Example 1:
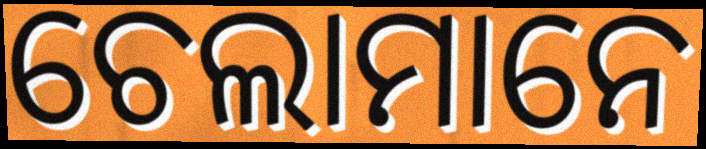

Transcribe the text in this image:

ଚେଲାମାନେ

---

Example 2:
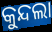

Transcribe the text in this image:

କୁନ୍ଦଲା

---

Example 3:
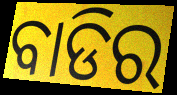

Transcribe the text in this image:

ବାଡିର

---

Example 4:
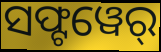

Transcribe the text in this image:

ସଫ୍ଟୱେର୍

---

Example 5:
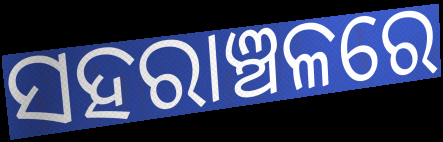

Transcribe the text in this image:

ସହରାଞ୍ଚଳରେ